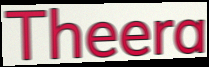
Theera